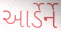
આર્ડેર્ને